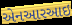
એનઆરઆઇ